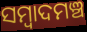
ସମ୍ୱାଦମଞ୍ଚ